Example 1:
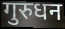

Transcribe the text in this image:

गुरुधन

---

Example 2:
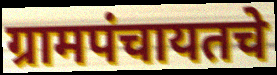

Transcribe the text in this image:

ग्रामपंचायतचे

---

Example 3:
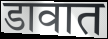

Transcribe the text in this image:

डावात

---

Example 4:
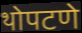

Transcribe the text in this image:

थोपटणे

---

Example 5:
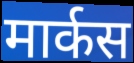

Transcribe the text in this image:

मार्कस